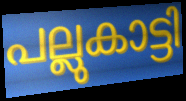
പല്ലുകാട്ടി